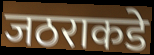
जठराकडे